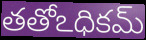
తతోఽధికమ్